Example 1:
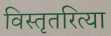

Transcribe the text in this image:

विस्तृतरित्या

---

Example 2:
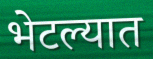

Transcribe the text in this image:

भेटल्यात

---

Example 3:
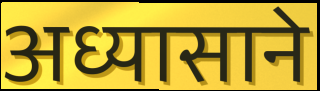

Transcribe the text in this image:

अध्यासाने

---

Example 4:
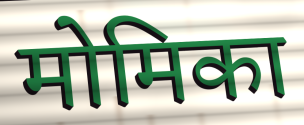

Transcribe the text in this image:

मोमिका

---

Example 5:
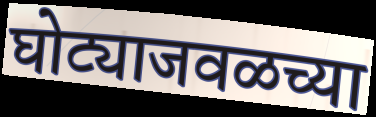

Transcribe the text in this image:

घोट्याजवळच्या